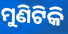
ମୁଣିଟିକି